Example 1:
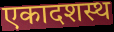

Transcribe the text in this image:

एकादशस्थ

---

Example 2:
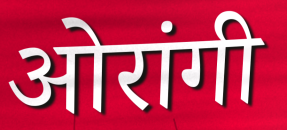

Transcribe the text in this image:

ओरांगी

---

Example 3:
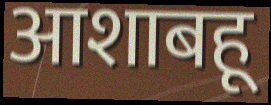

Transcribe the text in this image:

आशाबहू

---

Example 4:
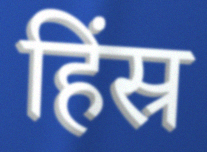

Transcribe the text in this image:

हिंस्र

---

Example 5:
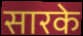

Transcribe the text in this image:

सारके